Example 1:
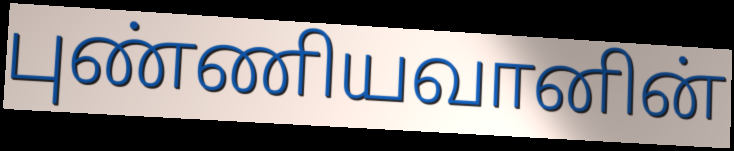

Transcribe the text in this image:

புண்ணியவானின்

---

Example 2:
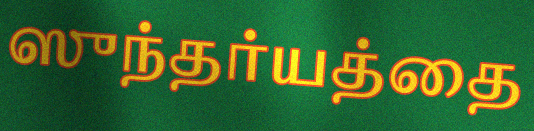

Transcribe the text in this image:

ஸுந்தர்யத்தை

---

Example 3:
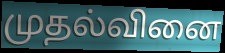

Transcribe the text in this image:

முதல்வினை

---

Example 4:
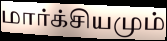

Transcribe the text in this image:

மார்க்சியமும்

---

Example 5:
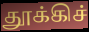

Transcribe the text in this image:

தூக்கிச்